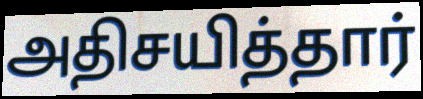
அதிசயித்தார்